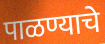
पाळण्याचे